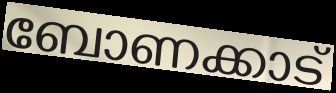
ബോണക്കാട്